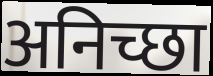
अनिच्छा